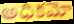
అధికమో